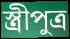
স্ত্রীপুত্র